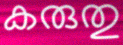
കരുതു